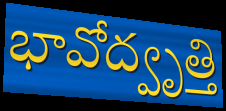
భావోద్వృత్తి